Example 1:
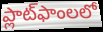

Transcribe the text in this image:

ప్లాట్‌ఫాంలలో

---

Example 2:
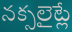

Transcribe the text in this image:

నక్సలైట్లే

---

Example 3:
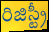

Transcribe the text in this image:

రిజిస్ట్రీ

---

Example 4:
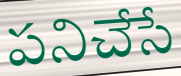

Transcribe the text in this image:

పనిచేసే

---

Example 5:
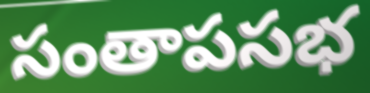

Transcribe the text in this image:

సంతాపసభ